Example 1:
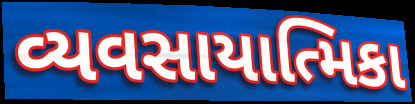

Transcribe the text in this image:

વ્યવસાયાત્મિકા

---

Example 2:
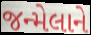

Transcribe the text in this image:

જન્મેલાને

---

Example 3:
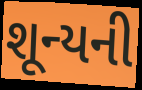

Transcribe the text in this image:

શૂન્યની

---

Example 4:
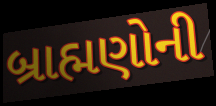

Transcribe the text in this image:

બ્રાહ્મણોની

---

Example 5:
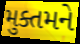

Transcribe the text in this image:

મુક્તમને